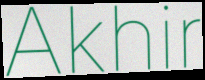
Akhir